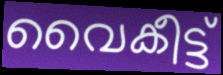
വൈകീട്ട്